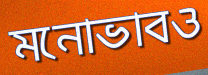
মনোভাবও